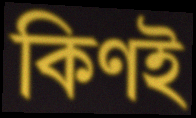
কিণই